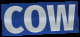
COW